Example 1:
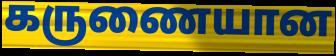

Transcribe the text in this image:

கருணையான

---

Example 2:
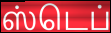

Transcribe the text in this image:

ஸ்டெப்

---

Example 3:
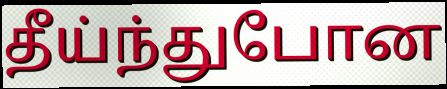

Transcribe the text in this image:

தீய்ந்துபோன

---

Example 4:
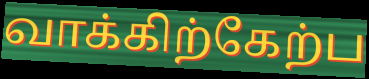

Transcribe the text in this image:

வாக்கிற்கேற்ப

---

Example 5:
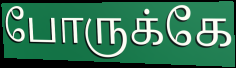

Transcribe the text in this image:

போருக்கே